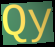
Qy